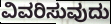
ವಿವರಿಸುವುದು